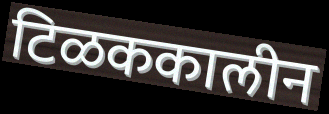
टिळककालीन